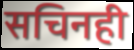
सचिनही